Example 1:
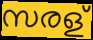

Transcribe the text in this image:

സരള്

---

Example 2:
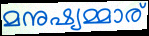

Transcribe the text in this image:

മനുഷ്യമ്മാര്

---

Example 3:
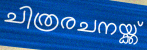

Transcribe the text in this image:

ചിത്രരചനയ്ക്ക്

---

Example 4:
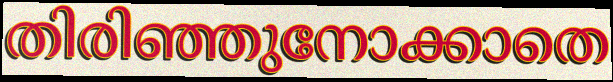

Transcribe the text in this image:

തിരിഞ്ഞുനോക്കാതെ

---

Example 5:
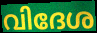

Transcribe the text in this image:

വിദേശ